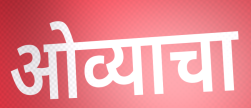
ओव्याचा